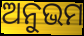
ଅନୁଭମ